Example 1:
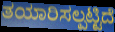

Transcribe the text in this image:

ತಯಾರಿಸಲ್ಪಟ್ಟಿದೆ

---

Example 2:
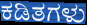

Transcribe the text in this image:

ಕಡಿತಗಳು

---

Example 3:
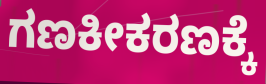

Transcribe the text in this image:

ಗಣಕೀಕರಣಕ್ಕೆ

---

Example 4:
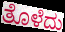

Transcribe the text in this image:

ತೊಳೆದು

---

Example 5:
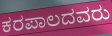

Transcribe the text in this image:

ಕರಪಾಲದವರು